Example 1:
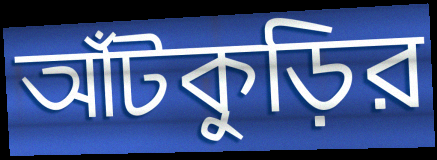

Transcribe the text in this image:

আঁটকুড়ির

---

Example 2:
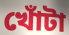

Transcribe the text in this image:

খোঁটা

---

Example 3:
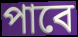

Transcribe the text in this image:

পাবে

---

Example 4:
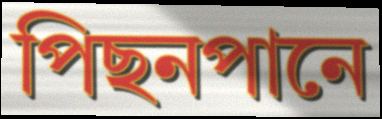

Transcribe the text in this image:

পিছনপানে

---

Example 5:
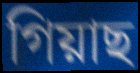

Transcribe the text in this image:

গিয়াছ